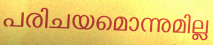
പരിചയമൊന്നുമില്ല